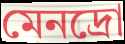
মেনদ্রো